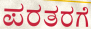
ಪರತರಗೆ